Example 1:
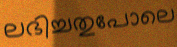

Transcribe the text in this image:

ലഭിച്ചതുപോലെ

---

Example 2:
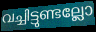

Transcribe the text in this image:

വച്ചിട്ടുണ്ടല്ലോ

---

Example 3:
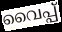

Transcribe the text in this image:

വൈപ്പ്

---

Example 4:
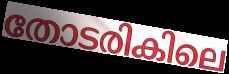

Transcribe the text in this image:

തോടരികിലെ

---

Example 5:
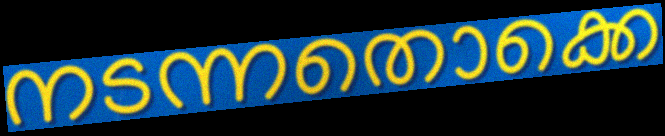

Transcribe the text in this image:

നടന്നതൊക്കെ